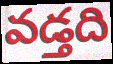
వడ్తది